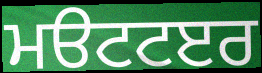
ਮੳਟਟੲਰ